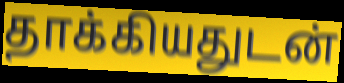
தாக்கியதுடன்